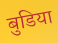
बुडिया